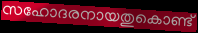
സഹോദരനായതുകൊണ്ട്